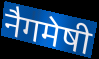
नैगमेषी